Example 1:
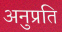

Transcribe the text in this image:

अनुप्रति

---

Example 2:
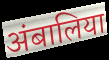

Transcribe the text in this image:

अंबालिया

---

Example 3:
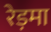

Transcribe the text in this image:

रेड़मा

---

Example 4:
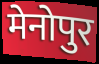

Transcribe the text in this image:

मेनोपुर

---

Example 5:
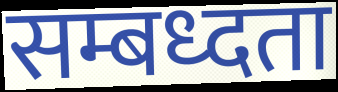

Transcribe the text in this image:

सम्बध्दता